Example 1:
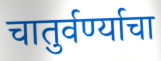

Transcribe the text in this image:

चातुर्वर्ण्याचा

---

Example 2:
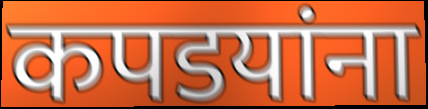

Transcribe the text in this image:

कपडयांना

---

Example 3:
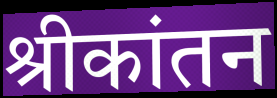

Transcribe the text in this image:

श्रीकांतन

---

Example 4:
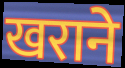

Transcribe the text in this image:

खराने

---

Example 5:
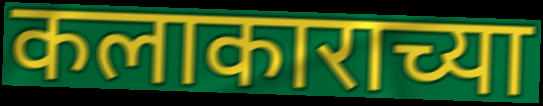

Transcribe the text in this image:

कलाकाराच्या